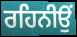
ਰਹਿਨੀਉਂ